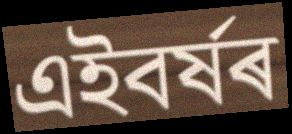
এইবৰ্ষৰ